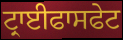
ਟ੍ਰਾਈਫਾਸਫੇਟ